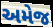
અમેજ